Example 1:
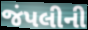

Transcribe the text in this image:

જંપલીની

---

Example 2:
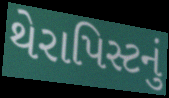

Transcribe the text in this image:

થેરાપિસ્ટનું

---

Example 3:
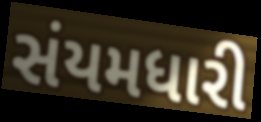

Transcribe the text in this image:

સંયમધારી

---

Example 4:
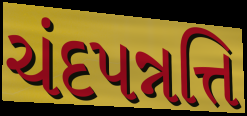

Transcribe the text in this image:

ચંદપન્નત્તિ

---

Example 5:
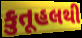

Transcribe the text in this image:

કુતૂહલથી